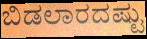
ಬಿಡಲಾರದಷ್ಟು